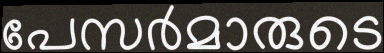
പേസർമാരുടെ